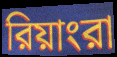
রিয়াংরা